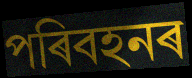
পৰিবহনৰ